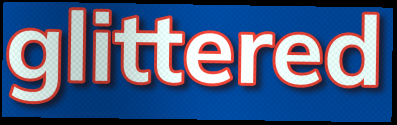
glittered